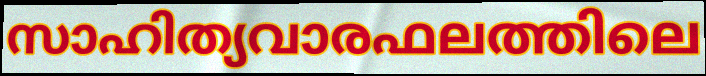
സാഹിത്യവാരഫലത്തിലെ